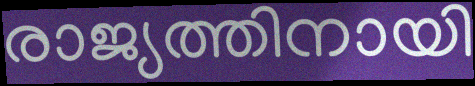
രാജ്യത്തിനായി